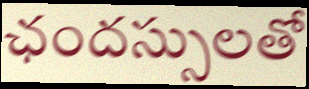
ఛందస్సులతో